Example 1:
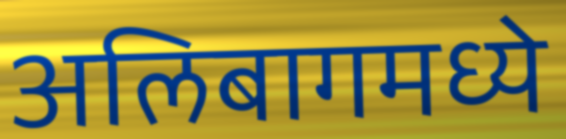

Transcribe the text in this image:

अलिबागमध्ये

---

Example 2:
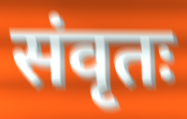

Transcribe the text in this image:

संवृतः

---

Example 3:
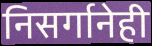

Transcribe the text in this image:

निसर्गानेही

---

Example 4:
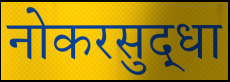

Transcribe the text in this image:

नोकरसुद्धा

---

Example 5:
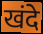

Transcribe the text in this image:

खंदे